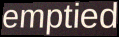
emptied